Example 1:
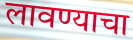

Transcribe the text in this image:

लावण्याचा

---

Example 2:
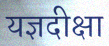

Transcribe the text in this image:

यज्ञदीक्षा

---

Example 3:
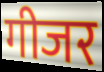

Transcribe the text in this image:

गीजर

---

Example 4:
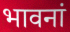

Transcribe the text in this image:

भावनां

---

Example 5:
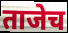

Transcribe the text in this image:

ताजेच